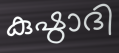
കുഷ്ഠാദി